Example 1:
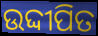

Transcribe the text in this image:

ଉଦ୍ଦୀପିତ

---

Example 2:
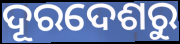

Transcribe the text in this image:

ଦୂରଦେଶରୁ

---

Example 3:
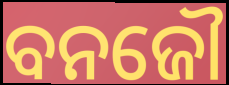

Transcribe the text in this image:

ବନଜୌ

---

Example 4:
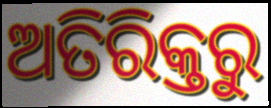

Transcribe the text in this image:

ଅତିରିକ୍ତରୁ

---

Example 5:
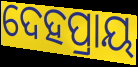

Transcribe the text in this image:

ଦେହପ୍ରାୟ